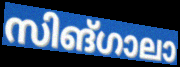
സിങ്ഗാലാ